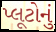
પ્લૂટોનું